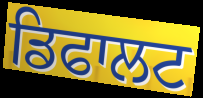
ਡਿਫਾਲਟ